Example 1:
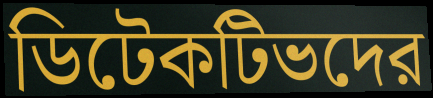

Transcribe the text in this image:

ডিটেকটিভদের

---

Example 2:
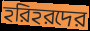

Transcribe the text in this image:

হরিহরদের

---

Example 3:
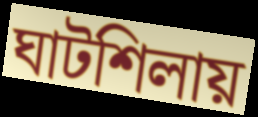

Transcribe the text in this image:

ঘাটশিলায়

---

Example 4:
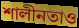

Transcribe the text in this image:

শালীনতাও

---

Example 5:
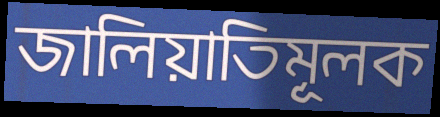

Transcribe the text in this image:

জালিয়াতিমূলক